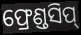
ଫ୍ରେଣ୍ଡସିପ୍